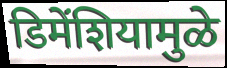
डिमेंशियामुळे